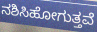
ನಶಿಸಿಹೋಗುತ್ತವೆ